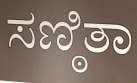
ಸಣ್ಠಿತಾ